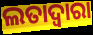
ଲତାଦ୍ୱାରା